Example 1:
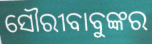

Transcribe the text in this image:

ସୌରୀବାବୁଙ୍କର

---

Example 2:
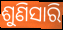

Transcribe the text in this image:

ଶୁଣିସାରି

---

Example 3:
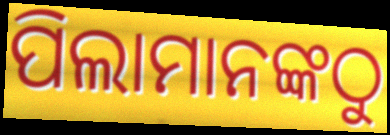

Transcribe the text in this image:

ପିଲାମାନଙ୍କଠୁ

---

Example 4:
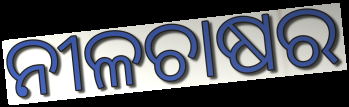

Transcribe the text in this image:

ନୀଳଚାଷର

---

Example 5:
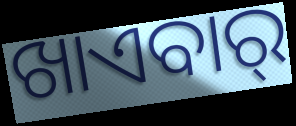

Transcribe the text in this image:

ଖାଏବାର୍